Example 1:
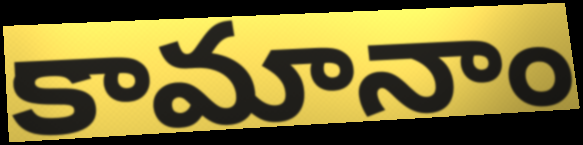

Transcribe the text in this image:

కామానాం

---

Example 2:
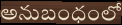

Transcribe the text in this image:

అనుబంధంలో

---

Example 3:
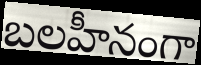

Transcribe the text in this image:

బలహీనంగా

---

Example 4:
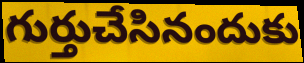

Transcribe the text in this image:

గుర్తుచేసినందుకు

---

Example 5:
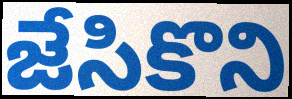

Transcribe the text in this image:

జేసికొని